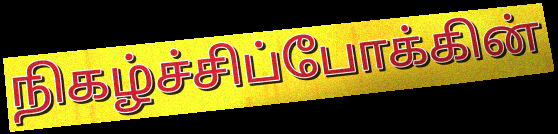
நிகழ்ச்சிப்போக்கின்